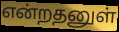
என்றதனுள்